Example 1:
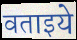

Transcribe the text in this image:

वताइये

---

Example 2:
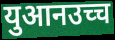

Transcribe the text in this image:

युआनउच्च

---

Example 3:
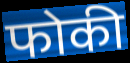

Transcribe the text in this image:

फोकी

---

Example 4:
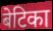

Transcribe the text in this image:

बेटिका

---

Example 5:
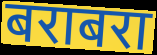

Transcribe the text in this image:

बराबरा